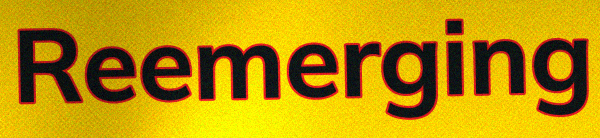
Reemerging